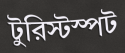
টুরিস্টস্পট